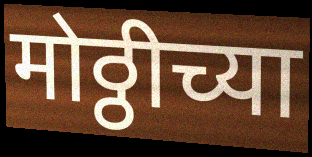
मोठ्ठीच्या